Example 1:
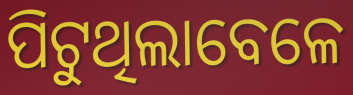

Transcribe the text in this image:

ପିଟୁଥିଲାବେଳେ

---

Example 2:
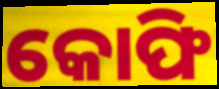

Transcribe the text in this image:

କୋଫି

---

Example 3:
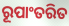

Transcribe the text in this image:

ରୂପାଂତରିତ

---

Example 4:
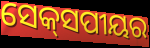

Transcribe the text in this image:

ସେକ୍‌ସପୀୟର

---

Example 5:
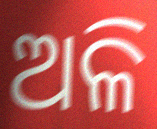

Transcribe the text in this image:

ଅଳି